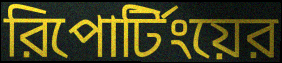
রিপোর্টিংয়ের